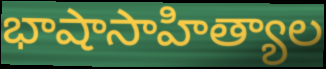
భాషాసాహిత్యాల